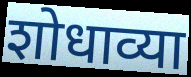
शोधाव्या